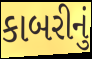
કાબરીનું